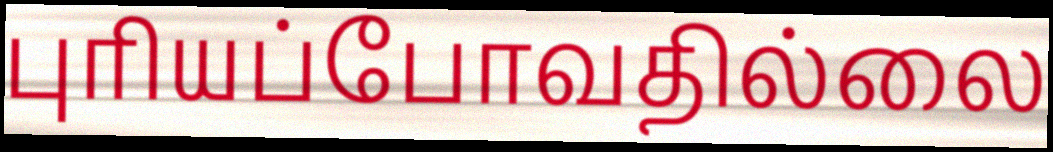
புரியப்போவதில்லை